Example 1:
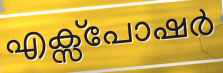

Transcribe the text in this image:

എക്സ്പോഷർ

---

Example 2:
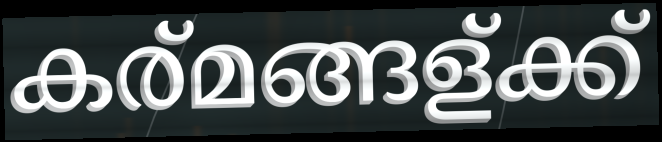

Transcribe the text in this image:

കര്മങ്ങള്ക്ക്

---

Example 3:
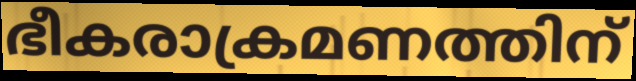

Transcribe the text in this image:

ഭീകരാക്രമണത്തിന്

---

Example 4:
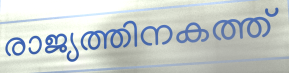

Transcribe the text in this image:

രാജ്യത്തിനകത്ത്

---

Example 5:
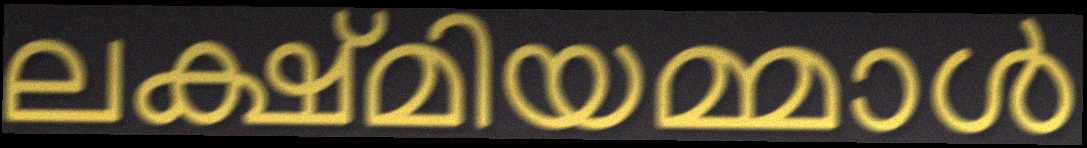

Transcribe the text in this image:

ലക്ഷ്മിയമ്മാൾ